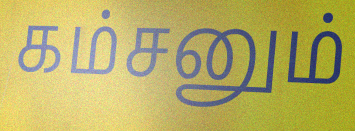
கம்சனும்